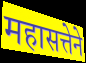
महासत्तेने